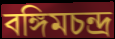
বঙ্গিমচন্দ্র